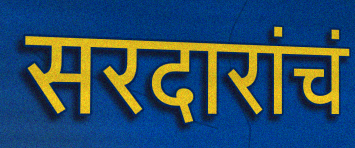
सरदारांचं